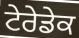
ਟੇਰੇਡੇਕ